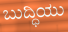
ಬುದ್ಧಿಯು